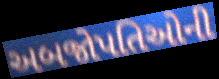
અબજોપતિઓની